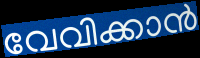
വേവിക്കാൻ